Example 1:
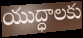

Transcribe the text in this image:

యుద్ధాలకు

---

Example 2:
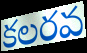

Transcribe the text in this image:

కలరవ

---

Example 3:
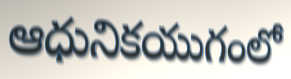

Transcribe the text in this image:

ఆధునికయుగంలో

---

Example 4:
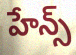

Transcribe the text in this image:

హేన్స్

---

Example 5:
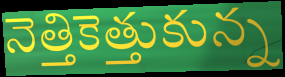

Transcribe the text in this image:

నెత్తికెత్తుకున్న